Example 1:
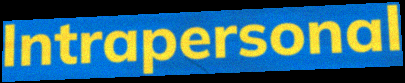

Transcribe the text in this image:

Intrapersonal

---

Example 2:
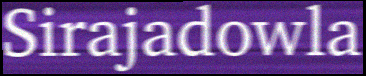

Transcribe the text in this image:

Sirajadowla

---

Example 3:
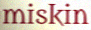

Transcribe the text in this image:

miskin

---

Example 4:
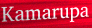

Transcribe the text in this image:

Kamarupa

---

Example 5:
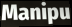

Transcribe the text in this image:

Manipu